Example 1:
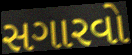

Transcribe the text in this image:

સગારવો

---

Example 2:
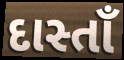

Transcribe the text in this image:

દાસ્તાઁ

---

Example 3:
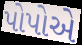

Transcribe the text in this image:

પોપોએ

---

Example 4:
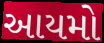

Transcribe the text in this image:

આયમો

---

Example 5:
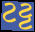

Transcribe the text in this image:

ટટ્ટ